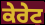
ਕੇਰੇਟ